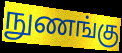
நுணங்கு